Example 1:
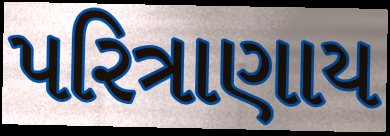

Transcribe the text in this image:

પરિત્રાણાય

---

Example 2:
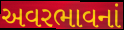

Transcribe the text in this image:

અવરભાવનાં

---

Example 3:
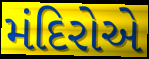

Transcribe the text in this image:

મંદિરોએ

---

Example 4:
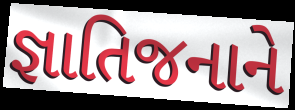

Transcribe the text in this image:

જ્ઞાતિજનાને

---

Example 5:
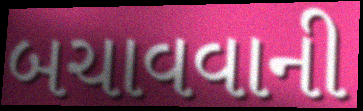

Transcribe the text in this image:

બચાવવાની